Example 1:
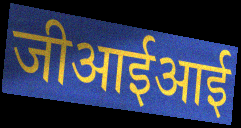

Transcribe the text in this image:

जीआईआई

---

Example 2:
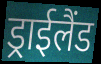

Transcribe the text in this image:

ड्राईलैंड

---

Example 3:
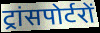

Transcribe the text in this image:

ट्रांसपोर्टरों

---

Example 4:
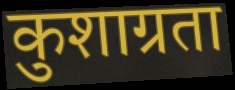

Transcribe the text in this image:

कुशाग्रता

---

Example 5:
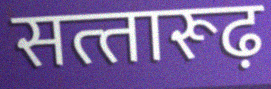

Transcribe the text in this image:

सत्‍तारूढ़